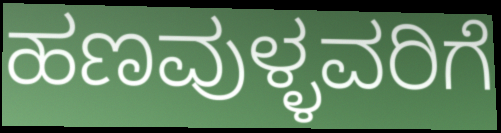
ಹಣವುಳ್ಳವರಿಗೆ